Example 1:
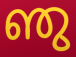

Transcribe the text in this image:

ഞു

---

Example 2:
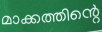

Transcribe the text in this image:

മാക്കത്തിന്റെ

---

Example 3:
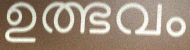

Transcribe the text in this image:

ഉത്ഭവം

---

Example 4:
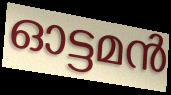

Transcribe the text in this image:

ഓട്ടമൻ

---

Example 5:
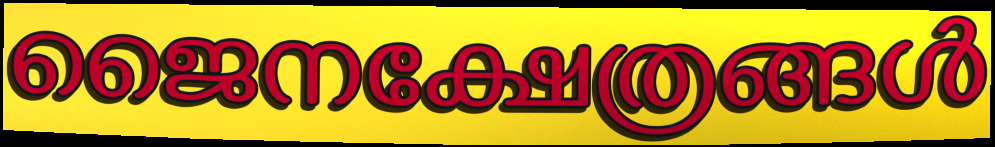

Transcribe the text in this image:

ജൈനക്ഷേത്രങ്ങൾ